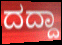
ದದ್ದಾ